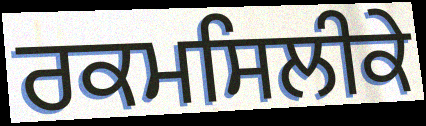
ਰਕਮਸਿਲੀਕੇ